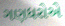
ગણધરોએ